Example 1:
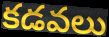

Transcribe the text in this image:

కడవలు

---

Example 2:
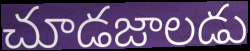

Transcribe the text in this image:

చూడజాలడు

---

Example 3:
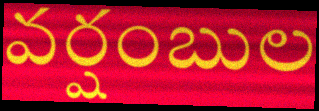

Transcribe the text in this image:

వర్షంబుల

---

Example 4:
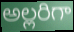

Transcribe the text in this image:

అల్లరిగా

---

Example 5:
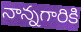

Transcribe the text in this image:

నాన్నగారికి